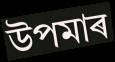
উপমাৰ